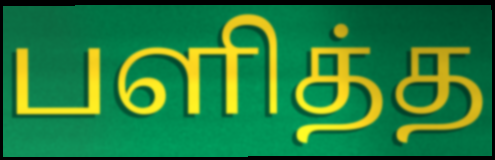
பளித்த